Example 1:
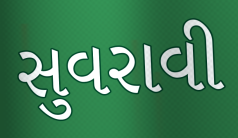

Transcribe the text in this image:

સુવરાવી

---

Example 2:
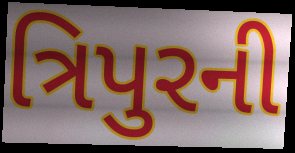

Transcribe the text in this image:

ત્રિપુરની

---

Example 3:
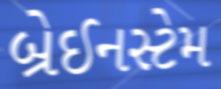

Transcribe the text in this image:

બ્રેઈનસ્ટેમ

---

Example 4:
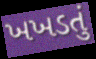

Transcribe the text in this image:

ખખડતું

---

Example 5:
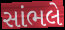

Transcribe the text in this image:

સાંભલે